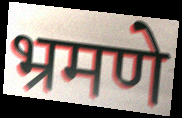
भ्रमणे